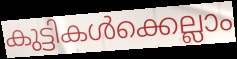
കുട്ടികൾക്കെല്ലാം